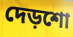
দেড়শো